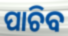
ପାଚିବ